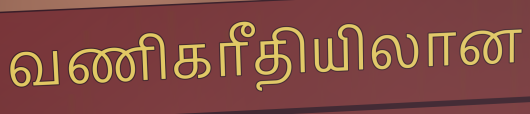
வணிகரீதியிலான